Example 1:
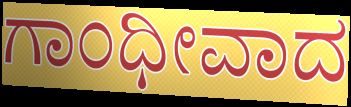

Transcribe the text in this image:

ಗಾಂಧೀವಾದ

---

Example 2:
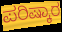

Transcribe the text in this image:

ಪರಿಷ್ಕಾರ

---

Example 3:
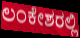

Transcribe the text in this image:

ಲಂಕೇಶರಲ್ಲಿ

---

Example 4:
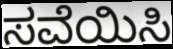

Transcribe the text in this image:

ಸವೆಯಿಸಿ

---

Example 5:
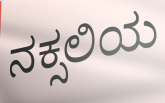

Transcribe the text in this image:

ನಕ್ಸಲಿಯ